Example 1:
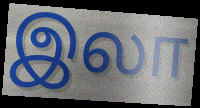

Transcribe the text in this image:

இலா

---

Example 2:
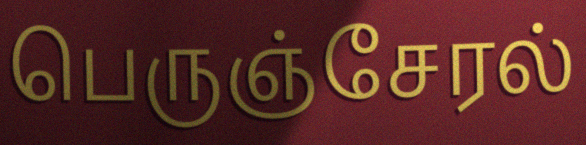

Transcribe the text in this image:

பெருஞ்சேரல்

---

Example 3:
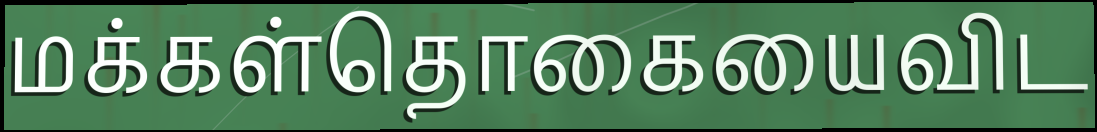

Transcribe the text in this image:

மக்கள்தொகையைவிட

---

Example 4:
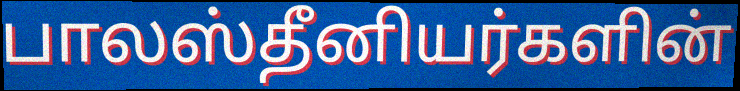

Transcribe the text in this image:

பாலஸ்தீனியர்களின்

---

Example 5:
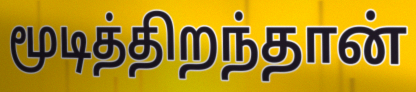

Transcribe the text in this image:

மூடித்திறந்தான்